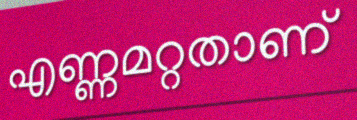
എണ്ണമറ്റതാണ്